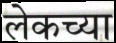
लेकच्या